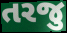
તરજુ